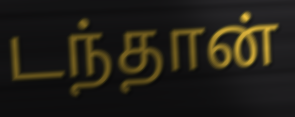
டந்தான்